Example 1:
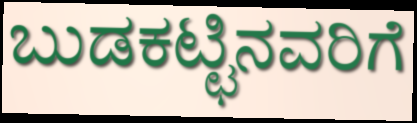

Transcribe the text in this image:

ಬುಡಕಟ್ಟಿನವರಿಗೆ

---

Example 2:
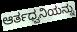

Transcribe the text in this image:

ಆರ್ತಧ್ವನಿಯನ್ನು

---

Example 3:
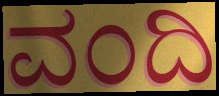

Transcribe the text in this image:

ವಂದಿ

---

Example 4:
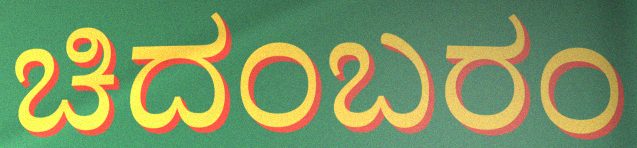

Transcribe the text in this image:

ಚಿದಂಬರಂ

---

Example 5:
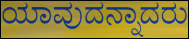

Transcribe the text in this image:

ಯಾವುದನ್ನಾದರು